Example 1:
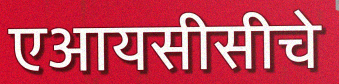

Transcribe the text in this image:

एआयसीसीचे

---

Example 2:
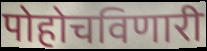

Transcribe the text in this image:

पोहोचविणारी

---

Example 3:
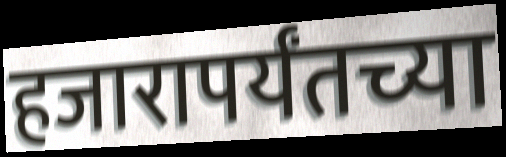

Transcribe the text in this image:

हजारापर्यंतच्या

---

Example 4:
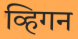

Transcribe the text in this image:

व्हिगन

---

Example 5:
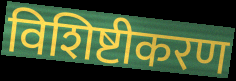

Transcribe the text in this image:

विशिष्टीकरण